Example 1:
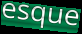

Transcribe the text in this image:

esque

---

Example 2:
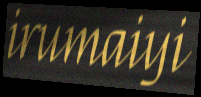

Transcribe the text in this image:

irumaiyi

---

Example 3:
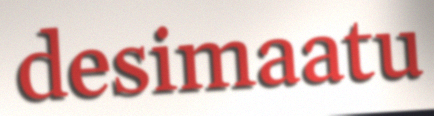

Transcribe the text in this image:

desimaatu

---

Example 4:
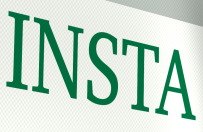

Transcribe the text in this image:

INSTA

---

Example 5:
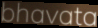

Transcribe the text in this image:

bhavata